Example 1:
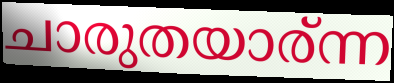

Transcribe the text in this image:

ചാരുതയാര്ന്ന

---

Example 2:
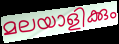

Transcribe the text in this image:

മലയാളിക്കും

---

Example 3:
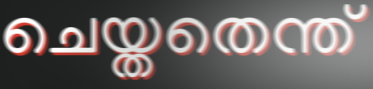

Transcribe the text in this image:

ചെയ്തതെന്ത്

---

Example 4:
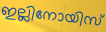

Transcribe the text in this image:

ഇല്ലിനോയിസ്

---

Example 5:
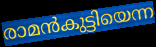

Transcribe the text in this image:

രാമൻകുട്ടിയെന്ന